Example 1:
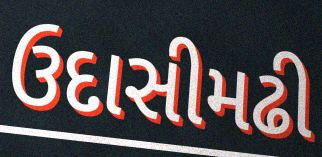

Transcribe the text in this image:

ઉદાસીમઢી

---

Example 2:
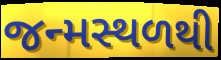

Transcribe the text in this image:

જન્મસ્થળથી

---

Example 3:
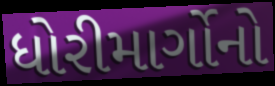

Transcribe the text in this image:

ધોરીમાર્ગોનો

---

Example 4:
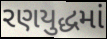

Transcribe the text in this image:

રણયુદ્ધમાં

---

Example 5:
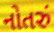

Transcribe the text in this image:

નોતરું